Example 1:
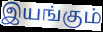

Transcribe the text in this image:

இயங்கும்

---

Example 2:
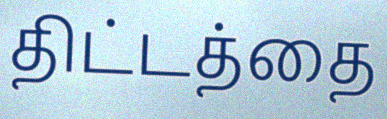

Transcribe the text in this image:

திட்டத்தை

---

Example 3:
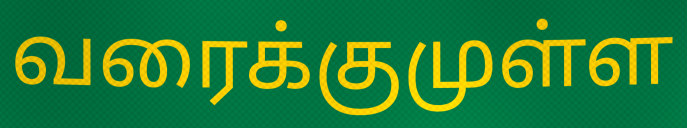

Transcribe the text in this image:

வரைக்குமுள்ள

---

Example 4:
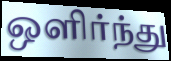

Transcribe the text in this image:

ஒளிர்ந்து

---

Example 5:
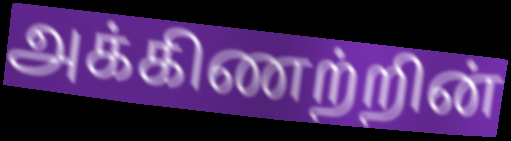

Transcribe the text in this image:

அக்கிணற்றின்